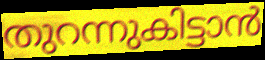
തുറന്നുകിട്ടാൻ